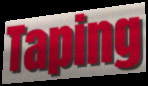
Taping